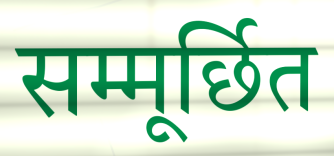
सम्मूर्छित